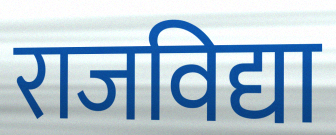
राजविद्या